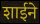
शाईने